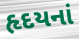
હૃદયનાં